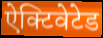
ऐक्टिवेटेड